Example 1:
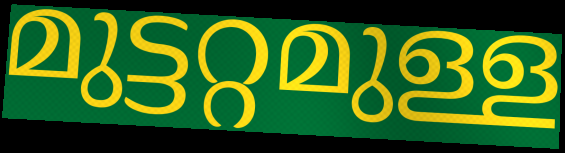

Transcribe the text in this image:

മുട്ടറ്റമുള്ള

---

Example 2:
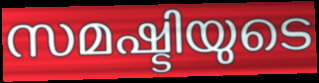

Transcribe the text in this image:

സമഷ്ടിയുടെ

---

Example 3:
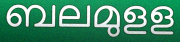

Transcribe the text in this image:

ബലമുളള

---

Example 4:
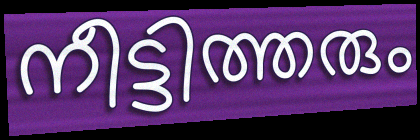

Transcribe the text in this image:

നീട്ടിത്തരും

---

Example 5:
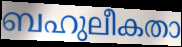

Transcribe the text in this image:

ബഹുലീകതാ